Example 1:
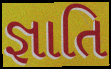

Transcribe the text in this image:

જ્ઞાતિ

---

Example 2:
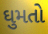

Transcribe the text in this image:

ઘુમતો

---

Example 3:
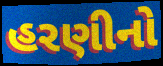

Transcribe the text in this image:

હરણીનો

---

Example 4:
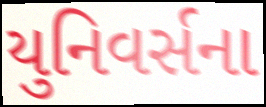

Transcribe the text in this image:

યુનિવર્સના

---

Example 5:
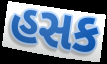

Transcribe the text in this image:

હસક